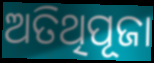
ଅତିଥିପୂଜା